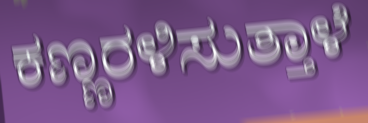
ಕಣ್ಣರಳಿಸುತ್ತಾಳೆ